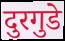
दुरगुडे